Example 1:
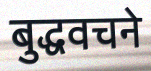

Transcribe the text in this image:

बुद्धवचने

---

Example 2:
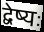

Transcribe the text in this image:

द्वेष्यः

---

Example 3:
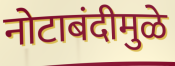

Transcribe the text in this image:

नोटाबंदीमुळे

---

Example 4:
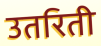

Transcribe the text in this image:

उतरिती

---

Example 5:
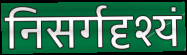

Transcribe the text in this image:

निसर्गदृश्यं